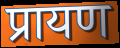
प्रायण